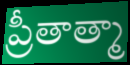
ప్రీతాత్మా